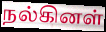
நல்கினள்